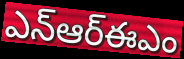
ఎన్ఆర్ఈఎం